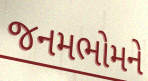
જનમભોમને